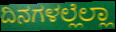
ದಿನಗಳಲ್ಲೆಲ್ಲಾ